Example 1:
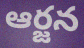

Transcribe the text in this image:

ఆర్జన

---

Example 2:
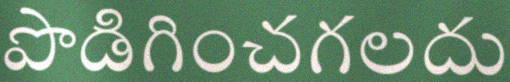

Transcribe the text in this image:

పొడిగించగలదు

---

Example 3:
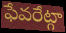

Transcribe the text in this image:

ఫేవరేట్గా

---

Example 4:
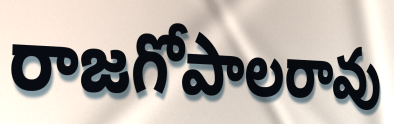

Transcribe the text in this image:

రాజగోపాలరావు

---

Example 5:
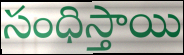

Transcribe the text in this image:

సంధిస్తాయి